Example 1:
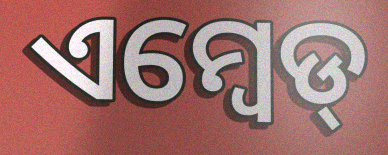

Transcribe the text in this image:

ଏମ୍ବେଡ୍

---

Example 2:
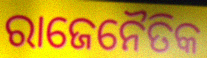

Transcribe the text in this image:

ରାଜେନୈତିକ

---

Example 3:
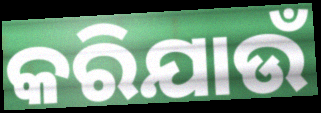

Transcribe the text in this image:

କରିଯାଉଁ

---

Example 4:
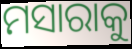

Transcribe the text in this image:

ମସାରାକୁ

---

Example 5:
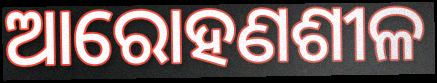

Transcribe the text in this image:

ଆରୋହଣଶୀଳ